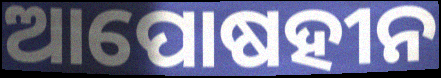
ଆପୋଷହୀନ